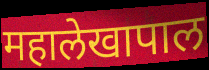
महालेखापाल